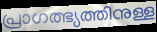
പ്രാഗത്ഭ്യത്തിനുള്ള